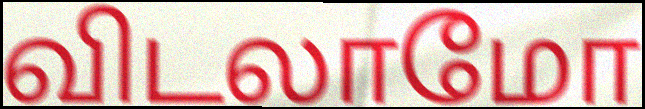
விடலாமோ